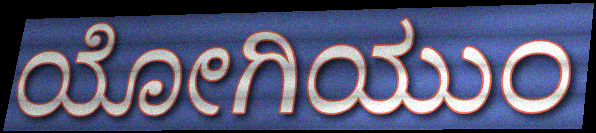
ಯೋಗಿಯುಂ